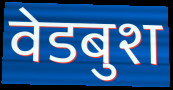
वेडबुश